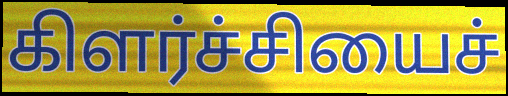
கிளர்ச்சியைச்